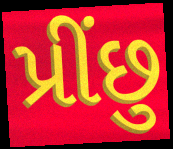
પ્રીંછુ